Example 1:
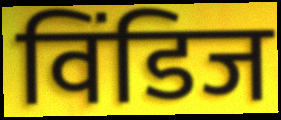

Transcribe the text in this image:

विंडिज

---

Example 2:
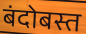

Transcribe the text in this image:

बंदोबस्त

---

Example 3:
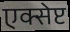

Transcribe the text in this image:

एक्सेप्ट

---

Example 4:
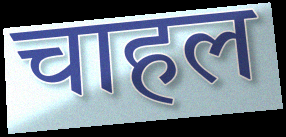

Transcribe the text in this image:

चाहल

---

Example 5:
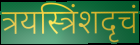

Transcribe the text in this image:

त्रयस्त्रिंशदृचं